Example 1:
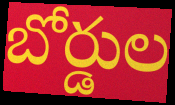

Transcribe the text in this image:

బోర్డుల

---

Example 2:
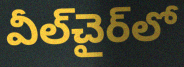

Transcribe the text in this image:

వీల్‌చైర్‌లో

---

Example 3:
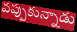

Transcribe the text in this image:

వప్పుకున్నాడు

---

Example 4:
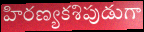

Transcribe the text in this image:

హిరణ్యకశిపుడుగా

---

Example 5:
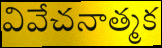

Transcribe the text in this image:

వివేచనాత్మక